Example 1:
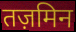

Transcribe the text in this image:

तज़मिन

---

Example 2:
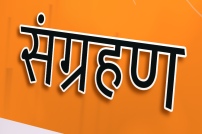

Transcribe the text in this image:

संग्रहण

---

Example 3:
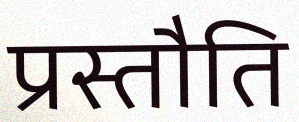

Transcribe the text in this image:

प्रस्तौति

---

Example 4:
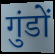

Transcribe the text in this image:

गुंडों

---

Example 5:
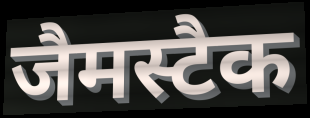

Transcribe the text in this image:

जैमस्टैक